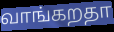
வாங்கறதா